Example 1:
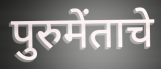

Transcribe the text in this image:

पुरुमेंताचे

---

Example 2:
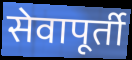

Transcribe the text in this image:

सेवापूर्ती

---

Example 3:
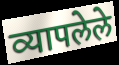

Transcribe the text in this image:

व्यापलेले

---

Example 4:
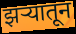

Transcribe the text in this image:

झऱ्यातून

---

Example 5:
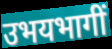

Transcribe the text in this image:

उभयभागीं